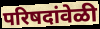
परिषदांवेळी